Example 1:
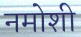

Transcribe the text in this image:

नमोशी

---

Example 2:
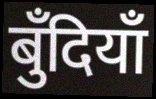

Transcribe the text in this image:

बुँदियाँ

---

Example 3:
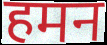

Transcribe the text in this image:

हमन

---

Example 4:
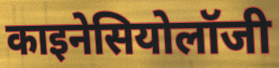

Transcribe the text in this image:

काइनेसियोलॉजी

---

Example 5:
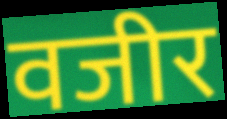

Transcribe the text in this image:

वजीर